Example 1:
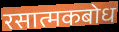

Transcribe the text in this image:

रसात्मकबोध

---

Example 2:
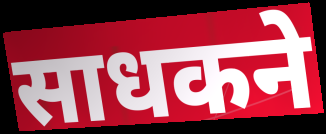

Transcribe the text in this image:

साधकने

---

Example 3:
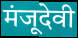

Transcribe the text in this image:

मंजूदेवी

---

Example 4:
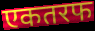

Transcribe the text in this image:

एकतरफ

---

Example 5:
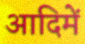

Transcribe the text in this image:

आदिमें